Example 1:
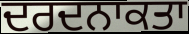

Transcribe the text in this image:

ਦਰਦਨਾਕਤਾ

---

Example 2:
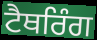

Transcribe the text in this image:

ਟੈਥਰਿੰਗ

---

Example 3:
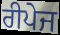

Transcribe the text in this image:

ਰੀਪੇਜ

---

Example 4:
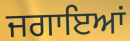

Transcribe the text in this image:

ਜਗਾਇਆਂ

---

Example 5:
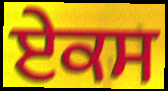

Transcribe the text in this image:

ਏਕਸ